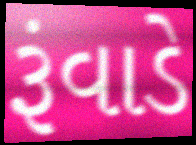
રૂંવાડે